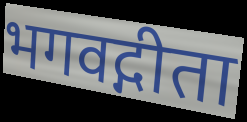
भगवद्गीता